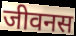
जीवनस